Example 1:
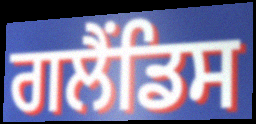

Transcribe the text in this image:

ਗਲੈਂਡਿਸ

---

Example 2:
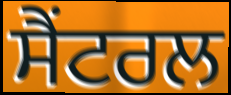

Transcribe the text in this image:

ਸੈਂਟਰਲ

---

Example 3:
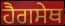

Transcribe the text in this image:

ਹੈਗਸੇਥ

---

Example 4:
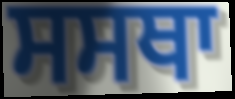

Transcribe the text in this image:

ਸਸਥਾ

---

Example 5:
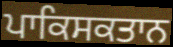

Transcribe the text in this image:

ਪਾਕਿਸਕਤਾਨ